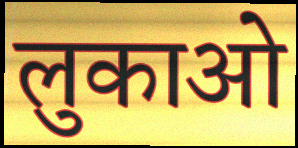
लुकाओ